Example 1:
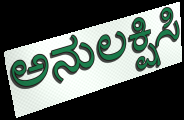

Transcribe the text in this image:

ಅನುಲಕ್ಷಿಸಿ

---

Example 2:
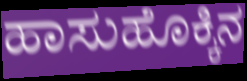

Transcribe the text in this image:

ಹಾಸುಹೊಕ್ಕಿನ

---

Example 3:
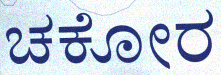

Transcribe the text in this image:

ಚಕೋರ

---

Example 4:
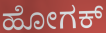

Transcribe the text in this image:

ಹೋಗಕ್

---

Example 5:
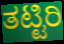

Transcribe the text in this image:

ತಟ್ಟಿರಿ